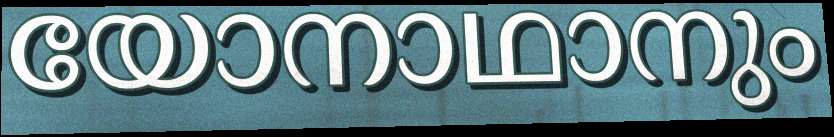
യോനാഥാനും